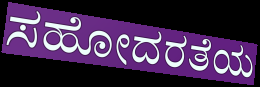
ಸಹೋದರತೆಯ